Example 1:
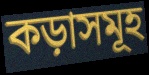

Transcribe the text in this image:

কড়াসমূহ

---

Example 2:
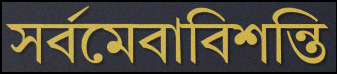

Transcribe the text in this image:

সর্বমেবাবিশন্তি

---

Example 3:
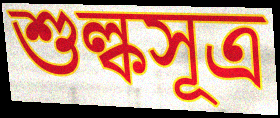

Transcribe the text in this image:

শুল্কসূত্র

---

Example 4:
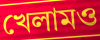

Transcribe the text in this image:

খেলামও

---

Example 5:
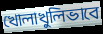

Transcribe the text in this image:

খোলাখুলিভাবে